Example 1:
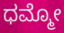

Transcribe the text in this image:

ಧಮ್ಮೋ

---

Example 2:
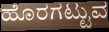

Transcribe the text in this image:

ಹೊರಗಟ್ಟುವ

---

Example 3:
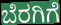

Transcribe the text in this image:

ಬೆರಗಿಗೆ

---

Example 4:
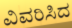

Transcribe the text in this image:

ವಿವರಿಸಿದ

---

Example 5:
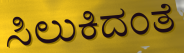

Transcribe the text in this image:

ಸಿಲುಕಿದಂತೆ